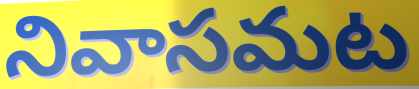
నివాసమట